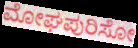
ಮೋಘಪುರಿಸೋ